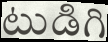
టుడిగి